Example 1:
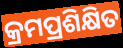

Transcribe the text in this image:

କ୍ରମପ୍ରଶିକ୍ଷିତ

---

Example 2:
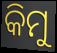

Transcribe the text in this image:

କିମୁ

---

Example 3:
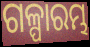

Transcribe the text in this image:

ଗଳ୍ପାରମ୍ଭ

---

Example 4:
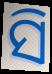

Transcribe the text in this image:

ସି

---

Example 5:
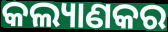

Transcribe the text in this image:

କଲ୍ୟାଣକର